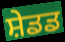
ਸ਼ੇਡਡ